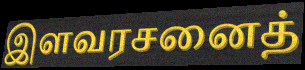
இளவரசனைத்